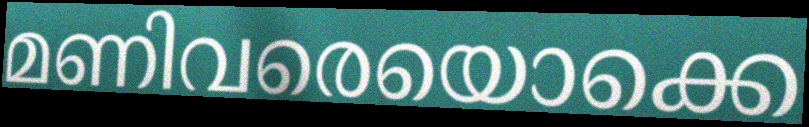
മണിവരെയൊക്കെ